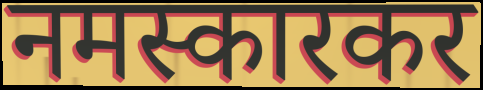
नमस्कारकर